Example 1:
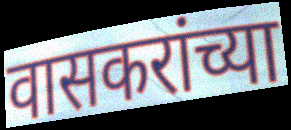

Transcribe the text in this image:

वासकरांच्या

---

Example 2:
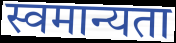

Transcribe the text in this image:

स्वमान्यता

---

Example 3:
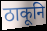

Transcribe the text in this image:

ठाकूनि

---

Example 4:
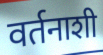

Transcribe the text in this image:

वर्तनाशी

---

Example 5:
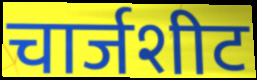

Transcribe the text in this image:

चार्जशीट